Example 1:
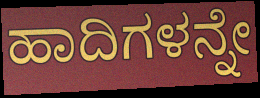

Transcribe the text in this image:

ಹಾದಿಗಳನ್ನೇ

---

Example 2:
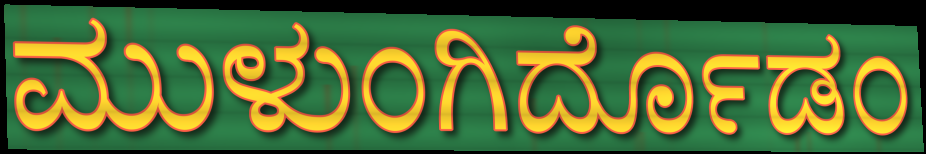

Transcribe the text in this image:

ಮುಳುಂಗಿರ್ದೊಡಂ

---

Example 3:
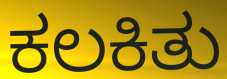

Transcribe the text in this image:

ಕಲಕಿತು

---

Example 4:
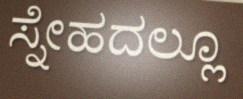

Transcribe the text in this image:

ಸ್ನೇಹದಲ್ಲೂ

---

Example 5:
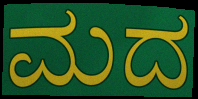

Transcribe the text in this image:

ಮದ